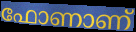
ഫോണാണ്